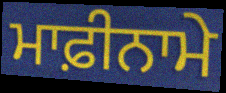
ਮਾਫ਼ੀਨਾਮੇ